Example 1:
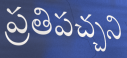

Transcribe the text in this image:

ప్రతిపచ్చని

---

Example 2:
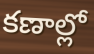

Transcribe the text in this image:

కణాల్లో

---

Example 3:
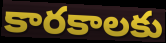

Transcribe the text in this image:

కారకాలకు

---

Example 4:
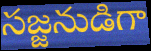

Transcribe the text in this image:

సజ్జనుడిగా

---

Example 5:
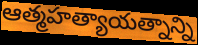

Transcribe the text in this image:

ఆత్మహత్యాయత్నాన్ని